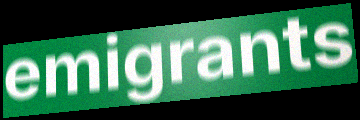
emigrants